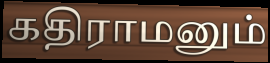
கதிராமனும்